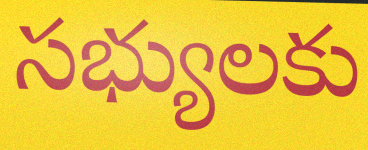
సభ్యులకు